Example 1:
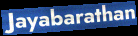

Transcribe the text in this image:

Jayabarathan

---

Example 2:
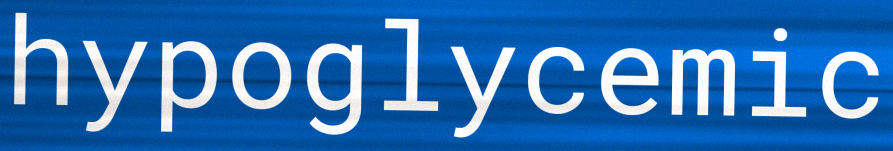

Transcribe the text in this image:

hypoglycemic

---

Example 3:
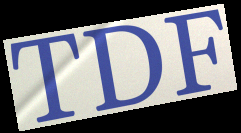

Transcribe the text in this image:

TDF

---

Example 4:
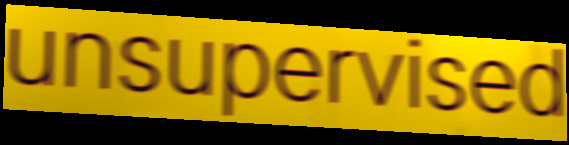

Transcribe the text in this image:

unsupervised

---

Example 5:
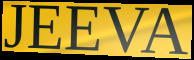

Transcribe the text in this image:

JEEVA